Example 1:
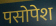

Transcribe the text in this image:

पसोपेश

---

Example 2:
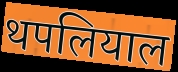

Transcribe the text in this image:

थपलियाल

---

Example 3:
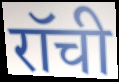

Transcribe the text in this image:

रॉची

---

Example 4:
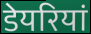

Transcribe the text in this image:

डेयरियां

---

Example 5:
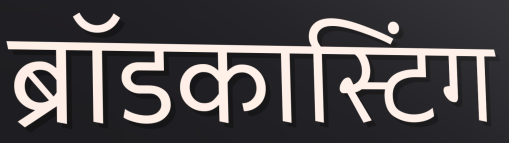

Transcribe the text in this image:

ब्रॉडकास्टिंग